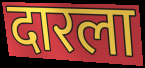
दारला